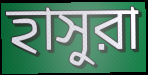
হাসুরা